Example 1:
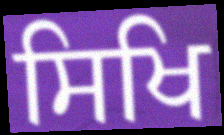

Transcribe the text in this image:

ਸਿਖਿ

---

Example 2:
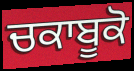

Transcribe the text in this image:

ਚਕਾਬੂਕੋ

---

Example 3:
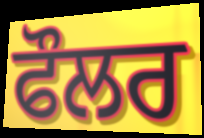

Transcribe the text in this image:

ਫੌਲਰ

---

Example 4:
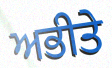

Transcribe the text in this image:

ਅਭੀਤੇ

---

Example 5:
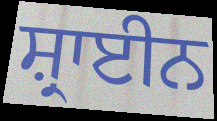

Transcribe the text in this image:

ਸ਼੍ਰਾਈਨ